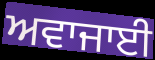
ਅਵਾਜਾਈ